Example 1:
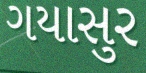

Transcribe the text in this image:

ગયાસુર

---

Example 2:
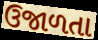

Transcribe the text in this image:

ઉજાળતા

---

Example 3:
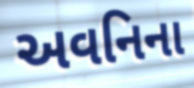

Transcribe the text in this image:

અવનિના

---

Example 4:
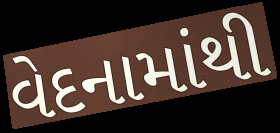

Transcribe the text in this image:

વેદનામાંથી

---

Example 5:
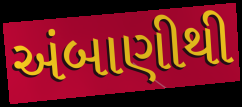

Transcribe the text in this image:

અંબાણીથી